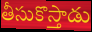
తీసుకొస్తాడు